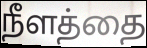
நீளத்தை